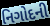
નિગોદની